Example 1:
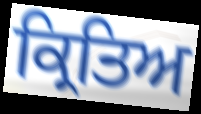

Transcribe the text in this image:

ਕ੍ਰਿਤਿਅ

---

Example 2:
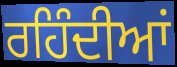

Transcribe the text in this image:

ਰਹਿੰਦੀਆਂ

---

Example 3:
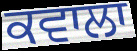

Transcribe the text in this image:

ਕਵਾਲਾ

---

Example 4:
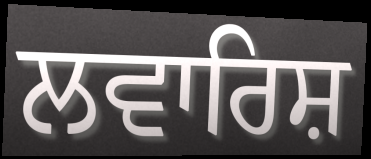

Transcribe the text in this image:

ਲਵਾਰਿਸ਼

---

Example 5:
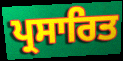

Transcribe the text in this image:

ਪ੍ਰਸਾਰਿਤ